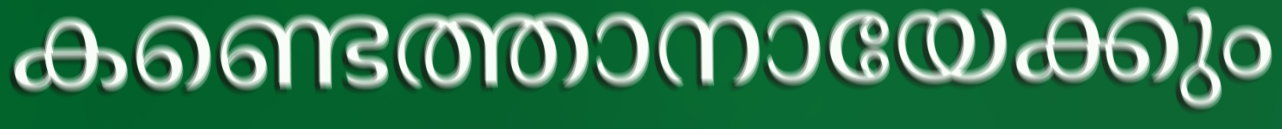
കണ്ടെത്താനായേക്കും